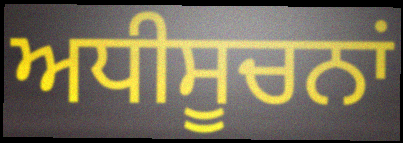
ਅਧੀਸੂਚਨਾਂ